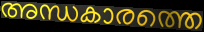
അന്ധകാരത്തെ